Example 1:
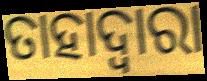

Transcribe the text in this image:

ତାହାଦ୍ଵାରା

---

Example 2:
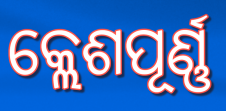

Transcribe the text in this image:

କ୍ଲେଶପୂର୍ଣ୍ଣ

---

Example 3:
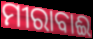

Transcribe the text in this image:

ମୀରାବାଈ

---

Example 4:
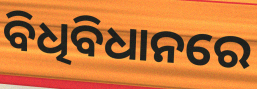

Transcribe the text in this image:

ବିଧିବିଧାନରେ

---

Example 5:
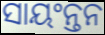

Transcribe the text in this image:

ସାୟଂନ୍ତନ